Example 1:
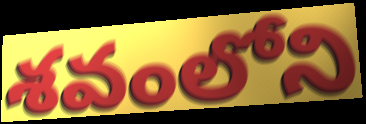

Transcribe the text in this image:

శవంలోని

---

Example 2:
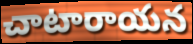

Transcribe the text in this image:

చాటారాయన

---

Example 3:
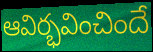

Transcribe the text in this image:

ఆవిర్భవించిందే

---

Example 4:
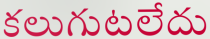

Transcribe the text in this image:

కలుగుటలేదు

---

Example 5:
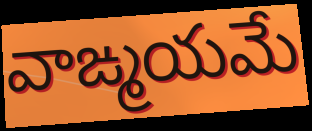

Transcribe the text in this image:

వాఙ్మయమే